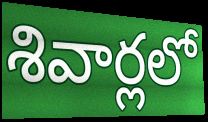
శివార్లలో